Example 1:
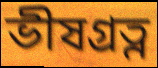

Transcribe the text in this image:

ভীষগ্ৰত্ন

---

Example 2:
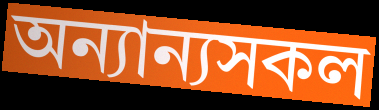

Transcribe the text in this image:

অন্যান্যসকল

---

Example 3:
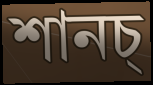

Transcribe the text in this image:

শানচ্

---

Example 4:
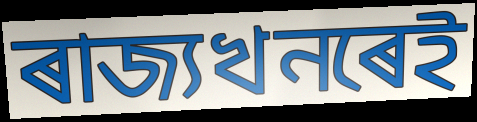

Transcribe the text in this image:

ৰাজ্যখনৰেই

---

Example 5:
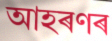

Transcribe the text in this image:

আহৰণৰ